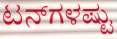
ಟನ್‌ಗಳಷ್ಟು